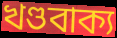
খণ্ডবাক্য